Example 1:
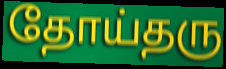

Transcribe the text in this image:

தோய்தரு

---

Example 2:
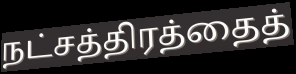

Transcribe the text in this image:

நட்சத்திரத்தைத்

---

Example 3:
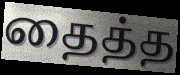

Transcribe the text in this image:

தைத்த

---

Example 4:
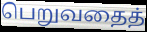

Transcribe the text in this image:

பெறுவதைத்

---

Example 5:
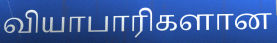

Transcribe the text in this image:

வியாபாரிகளான